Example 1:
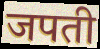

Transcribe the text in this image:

जपती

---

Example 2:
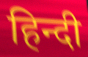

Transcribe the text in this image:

हिन्दी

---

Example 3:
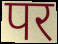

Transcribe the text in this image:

पर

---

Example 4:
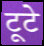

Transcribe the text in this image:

टूटे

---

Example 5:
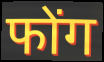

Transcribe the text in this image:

फोंग